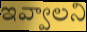
ఇవ్వాలని